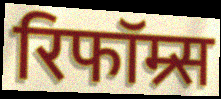
रिफॉम्र्स